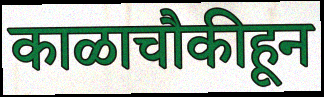
काळाचौकीहून